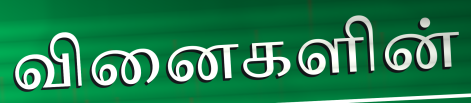
வினைகளின்